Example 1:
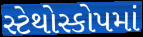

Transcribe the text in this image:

સ્ટેથોસ્કોપમાં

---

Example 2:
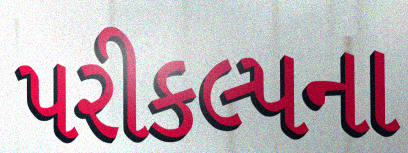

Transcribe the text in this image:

પરીકલ્પના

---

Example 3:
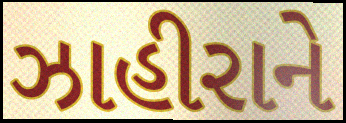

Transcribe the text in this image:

ઝાહીરાને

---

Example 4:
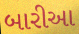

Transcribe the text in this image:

બારીઆ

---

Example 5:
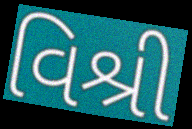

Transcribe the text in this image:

વિશ્રી